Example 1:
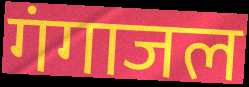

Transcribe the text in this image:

गंगाजल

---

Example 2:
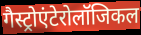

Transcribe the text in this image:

गैस्ट्रोएंटेरोलॉजिकल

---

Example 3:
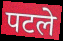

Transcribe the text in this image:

पटले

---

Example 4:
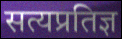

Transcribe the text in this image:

सत्यप्रतिज्ञ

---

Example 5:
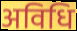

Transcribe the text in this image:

अविधि